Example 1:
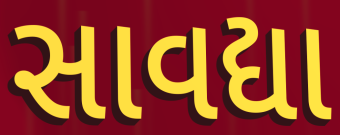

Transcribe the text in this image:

સાવદ્યા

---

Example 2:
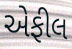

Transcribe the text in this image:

એફીલ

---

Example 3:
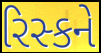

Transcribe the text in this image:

રિસ્કને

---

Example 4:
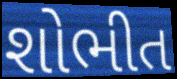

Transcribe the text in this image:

શોભીત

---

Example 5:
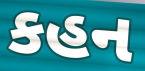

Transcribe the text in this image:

કહન